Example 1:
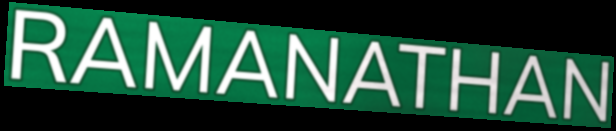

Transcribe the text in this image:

RAMANATHAN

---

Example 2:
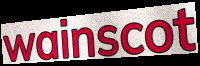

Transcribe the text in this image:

wainscot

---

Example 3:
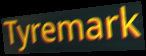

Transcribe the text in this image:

Tyremark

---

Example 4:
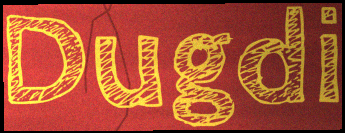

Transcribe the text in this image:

Dugdi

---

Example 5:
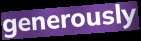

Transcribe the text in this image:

generously